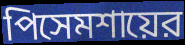
পিসেমশায়ের